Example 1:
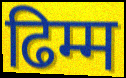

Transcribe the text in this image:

ढिम्म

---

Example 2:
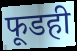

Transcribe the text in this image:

फूडही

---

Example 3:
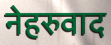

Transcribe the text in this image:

नेहरुवाद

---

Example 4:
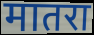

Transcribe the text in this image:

मातरा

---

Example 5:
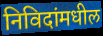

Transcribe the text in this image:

निविदांमधील